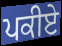
ਪਕੀਏ